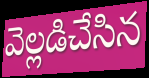
వెల్లడిచేసిన